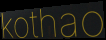
kothao